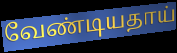
வேண்டியதாய்